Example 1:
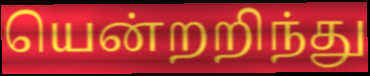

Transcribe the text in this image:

யென்றறிந்து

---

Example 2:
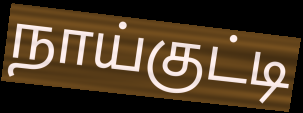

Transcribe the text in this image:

நாய்குட்டி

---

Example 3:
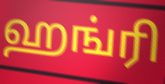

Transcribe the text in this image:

ஹங்ரி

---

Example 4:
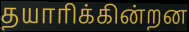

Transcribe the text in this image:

தயாரிக்கின்றன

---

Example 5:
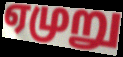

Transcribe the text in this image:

ஏமுறு